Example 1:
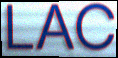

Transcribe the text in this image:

LAC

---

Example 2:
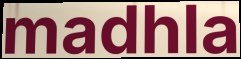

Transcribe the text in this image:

madhla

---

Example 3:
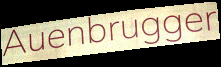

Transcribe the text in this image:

Auenbrugger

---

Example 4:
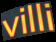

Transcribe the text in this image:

villi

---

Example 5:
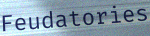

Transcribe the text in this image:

Feudatories